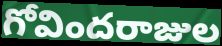
గోవిందరాజుల